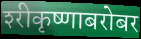
श्रीकृष्णाबरोबर